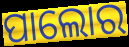
ପାଲୋର